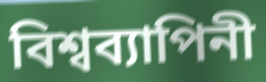
বিশ্বব্যাপিনী